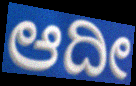
ಆದೀ